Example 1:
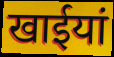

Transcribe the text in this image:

खाईयां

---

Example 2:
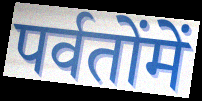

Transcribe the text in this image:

पर्वतोंमें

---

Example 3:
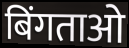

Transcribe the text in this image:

बिंगताओ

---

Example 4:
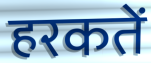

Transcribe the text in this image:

हरकतें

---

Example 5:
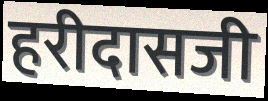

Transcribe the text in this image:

हरीदासजी